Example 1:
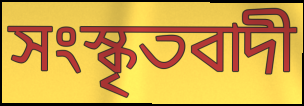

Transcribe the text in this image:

সংস্কৃতবাদী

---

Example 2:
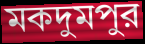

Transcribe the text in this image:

মকদুমপুর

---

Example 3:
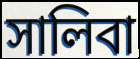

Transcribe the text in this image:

সালিবা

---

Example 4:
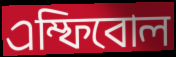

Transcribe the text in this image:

এম্ফিবোল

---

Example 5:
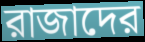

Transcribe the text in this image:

রাজাদের